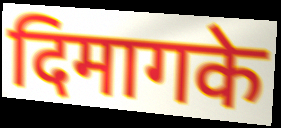
दिमागके